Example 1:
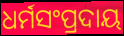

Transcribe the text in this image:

ଧର୍ମସଂପ୍ରଦାୟ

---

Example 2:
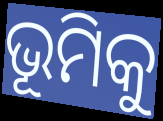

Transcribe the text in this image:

ଭୂମିକୁ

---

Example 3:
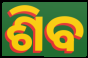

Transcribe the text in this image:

ଶିବ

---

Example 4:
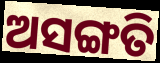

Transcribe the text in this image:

ଅସଙ୍ଗତି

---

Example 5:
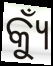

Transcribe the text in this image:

କ୍ୟୁଁ